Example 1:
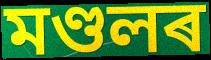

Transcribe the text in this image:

মণ্ডলৰ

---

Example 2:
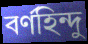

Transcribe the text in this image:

বৰ্ণহিন্দু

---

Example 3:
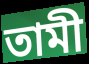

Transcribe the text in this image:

তামী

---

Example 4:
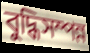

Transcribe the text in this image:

বুদ্ধিসম্পন্ন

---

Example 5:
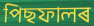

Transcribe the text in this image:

পিছফালৰ